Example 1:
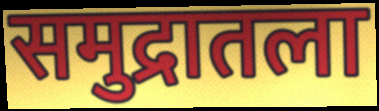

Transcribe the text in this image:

समुद्रातला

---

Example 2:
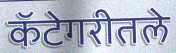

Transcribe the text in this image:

कॅटेगरीतले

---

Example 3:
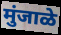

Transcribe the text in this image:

मुंजाळे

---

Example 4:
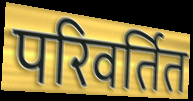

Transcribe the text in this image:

परिवर्तित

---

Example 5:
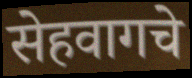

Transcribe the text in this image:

सेहवागचे